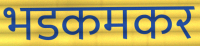
भडकमकर